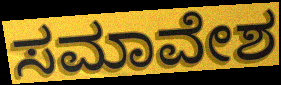
ಸಮಾವೇಶ